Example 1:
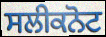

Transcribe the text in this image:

ਸਲੀਕਨੋਟ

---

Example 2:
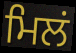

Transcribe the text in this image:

ਮਿਲਂ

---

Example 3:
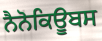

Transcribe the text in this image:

ਨੈਨੋਕਿਊਬਸ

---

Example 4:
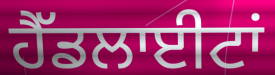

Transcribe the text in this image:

ਹੈੱਡਲਾਈਟਾਂ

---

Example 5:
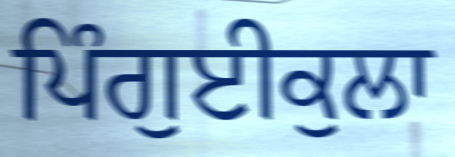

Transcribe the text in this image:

ਪਿੰਗੁਈਕੁਲਾ